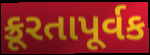
ક્રૂરતાપૂર્વક